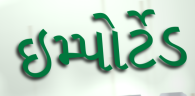
ઇમ્પોર્ટેડ